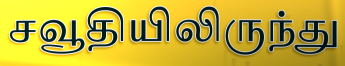
சவூதியிலிருந்து